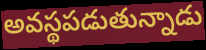
అవస్థపడుతున్నాడు